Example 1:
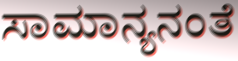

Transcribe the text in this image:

ಸಾಮಾನ್ಯನಂತೆ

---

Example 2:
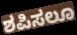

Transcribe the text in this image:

ಶಪಿಸಲೂ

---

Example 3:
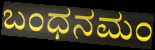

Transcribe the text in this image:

ಬಂಧನಮಂ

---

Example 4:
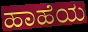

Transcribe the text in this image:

ಹಾಹೆಯ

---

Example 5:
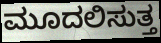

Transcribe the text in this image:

ಮೂದಲಿಸುತ್ತ